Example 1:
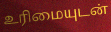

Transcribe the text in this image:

உரிமையுடன்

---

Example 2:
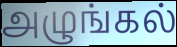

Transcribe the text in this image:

அழுங்கல்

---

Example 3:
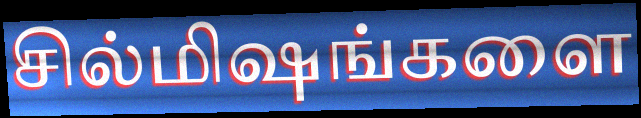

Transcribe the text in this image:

சில்மிஷங்களை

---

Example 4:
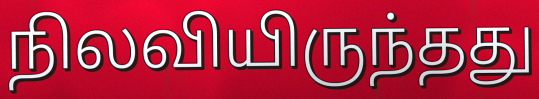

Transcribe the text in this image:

நிலவியிருந்தது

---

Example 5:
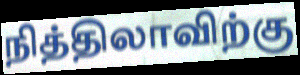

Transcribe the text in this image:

நித்திலாவிற்கு